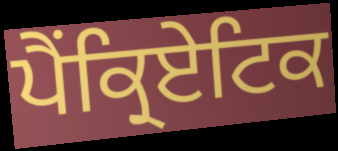
ਪੈਂਕ੍ਰਿਏਟਿਕ